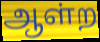
ஆள்ற